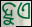
ହୁଏ